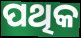
ପଥିକ